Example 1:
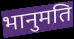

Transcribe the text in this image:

भानुमति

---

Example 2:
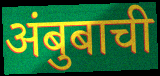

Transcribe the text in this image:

अंबुबाची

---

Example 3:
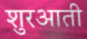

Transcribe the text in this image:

शुरआती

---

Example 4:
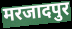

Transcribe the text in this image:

मरजादपुर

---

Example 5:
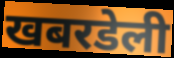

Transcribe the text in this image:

खबरडेली